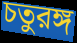
চতুরঙ্গ